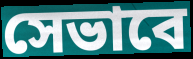
সেভাবে